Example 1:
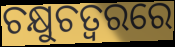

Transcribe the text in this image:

ଚକ୍ଷୁଚତ୍ୱରରେ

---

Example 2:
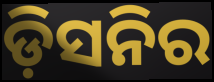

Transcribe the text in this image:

ଡ଼ିସନିର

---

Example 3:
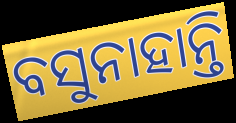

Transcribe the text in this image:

ବସୁନାହାନ୍ତି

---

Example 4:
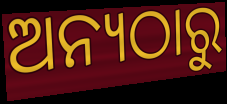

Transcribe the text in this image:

ଅନ୍ୟଠାରୁ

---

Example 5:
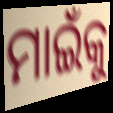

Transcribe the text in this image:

ମାଇଁକୁ